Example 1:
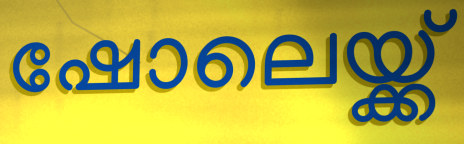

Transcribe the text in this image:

ഷോലെയ്ക്ക്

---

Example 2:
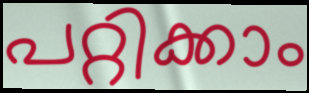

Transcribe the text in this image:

പറ്റിക്കാം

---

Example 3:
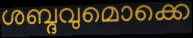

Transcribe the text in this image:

ശബ്ദവുമൊക്കെ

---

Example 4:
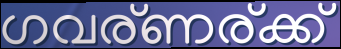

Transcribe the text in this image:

ഗവര്ണര്ക്ക്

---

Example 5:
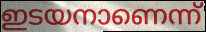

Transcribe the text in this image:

ഇടയനാണെന്ന്